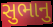
સુભાનુ